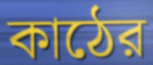
কাঠের